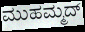
ಮುಹಮ್ಮದ್